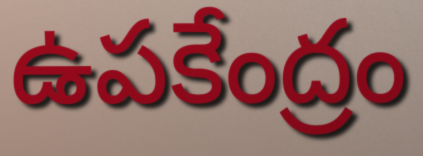
ఉపకేంద్రం